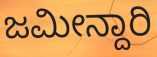
ಜಮೀನ್ದಾರಿ